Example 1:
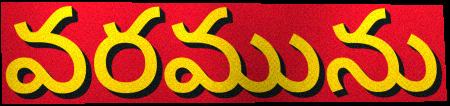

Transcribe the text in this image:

వరమును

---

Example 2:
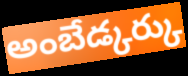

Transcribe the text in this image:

అంబేడ్కర్కు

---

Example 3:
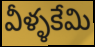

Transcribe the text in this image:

వీళ్ళకేమి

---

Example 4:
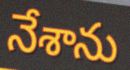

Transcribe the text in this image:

నేశాను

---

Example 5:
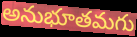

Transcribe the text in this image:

అనుభూతమగు